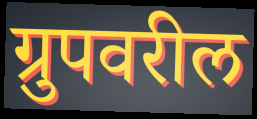
ग्रुपवरील